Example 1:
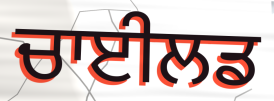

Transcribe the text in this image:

ਚਾਈਲਡ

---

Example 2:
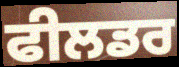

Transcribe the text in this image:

ਫੀਲਡਰ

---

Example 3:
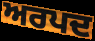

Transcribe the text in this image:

ਅਰਪਦ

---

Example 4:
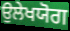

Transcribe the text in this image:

ਉਲੇਖਯੋਗ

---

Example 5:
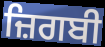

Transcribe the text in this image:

ਜ਼ਿਗਬੀ